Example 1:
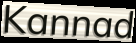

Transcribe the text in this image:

Kannad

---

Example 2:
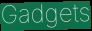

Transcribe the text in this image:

Gadgets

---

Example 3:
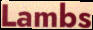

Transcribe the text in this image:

Lambs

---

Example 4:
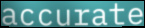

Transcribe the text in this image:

accurate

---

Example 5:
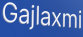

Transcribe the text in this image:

Gajlaxmi